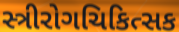
સ્ત્રીરોગચિકિત્સક